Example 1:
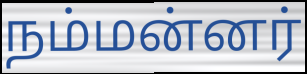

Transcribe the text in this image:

நம்மன்னர்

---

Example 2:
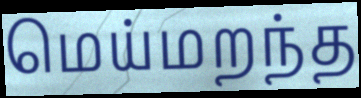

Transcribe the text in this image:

மெய்மறந்த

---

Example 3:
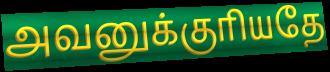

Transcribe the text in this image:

அவனுக்குரியதே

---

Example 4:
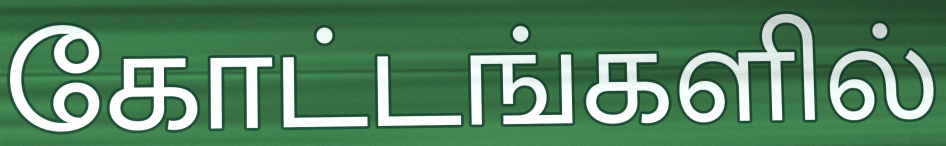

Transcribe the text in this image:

கோட்டங்களில்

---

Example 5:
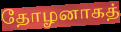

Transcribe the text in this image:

தோழனாகத்